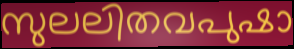
സുലലിതവപുഷാ